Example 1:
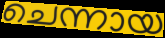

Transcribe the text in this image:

ചെന്നായ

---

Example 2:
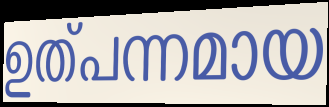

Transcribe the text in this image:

ഉത്പന്നമായ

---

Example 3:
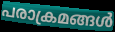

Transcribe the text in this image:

പരാക്രമങ്ങൾ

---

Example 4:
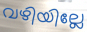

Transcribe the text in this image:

വഴിയില്ലേ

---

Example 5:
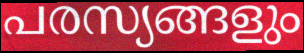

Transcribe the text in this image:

പരസ്യങ്ങളും